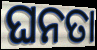
ଘନତା